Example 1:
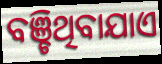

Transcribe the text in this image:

ବଞ୍ଚିଥିବାଯାଏ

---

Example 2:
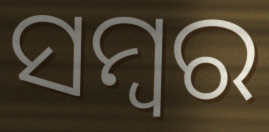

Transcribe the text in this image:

ସମ୍ବର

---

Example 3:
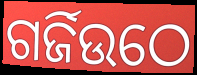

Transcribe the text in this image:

ଗର୍ଜିଉଠେ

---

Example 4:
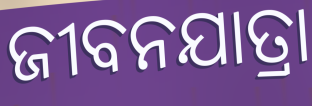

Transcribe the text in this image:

ଜୀବନଯାତ୍ରା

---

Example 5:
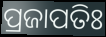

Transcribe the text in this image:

ପ୍ରଜାପତିଃ